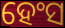
ହେଂସ